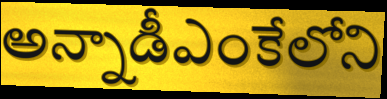
అన్నాడీఎంకేలోని